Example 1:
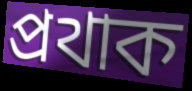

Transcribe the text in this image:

প্ৰথাক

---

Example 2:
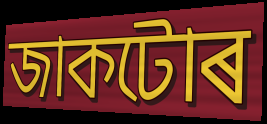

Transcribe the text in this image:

জাকটোৰ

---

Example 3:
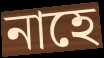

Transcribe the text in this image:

নাহে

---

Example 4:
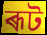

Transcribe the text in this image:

ৰূট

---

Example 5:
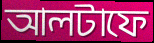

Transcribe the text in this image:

আলটাফে